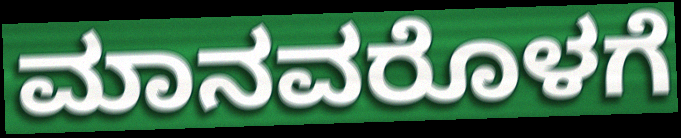
ಮಾನವರೊಳಗೆ